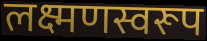
लक्ष्मणस्वरूप